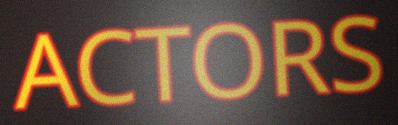
ACTORS